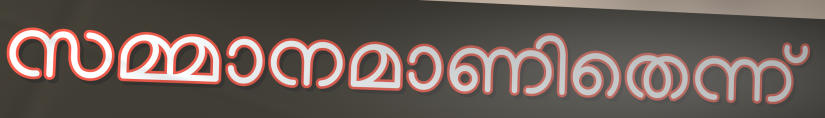
സമ്മാനമാണിതെന്ന്